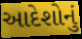
આદેશોનું